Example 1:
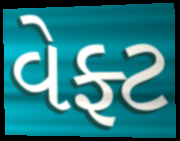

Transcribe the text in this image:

વેફ્ટ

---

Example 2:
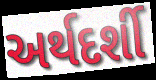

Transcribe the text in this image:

અર્થદર્શી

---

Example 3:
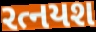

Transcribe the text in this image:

રત્નયશ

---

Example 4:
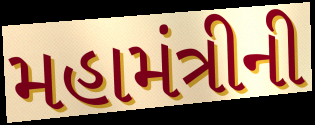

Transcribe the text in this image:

મહામંત્રીની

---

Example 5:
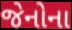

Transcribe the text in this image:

જેનોના